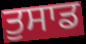
ਤੁਸਾਡ